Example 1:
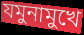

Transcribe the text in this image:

যমুনামুখে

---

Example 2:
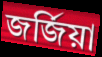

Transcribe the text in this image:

জর্জিয়া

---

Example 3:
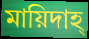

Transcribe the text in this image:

মায়িদাহ্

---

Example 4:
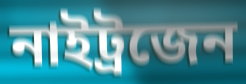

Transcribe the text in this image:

নাইট্রজেন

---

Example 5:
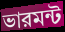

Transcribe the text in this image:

ভারমন্ট